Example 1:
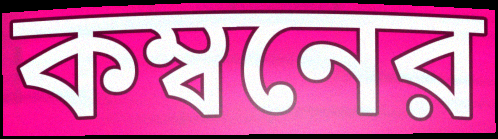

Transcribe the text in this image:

কম্বনের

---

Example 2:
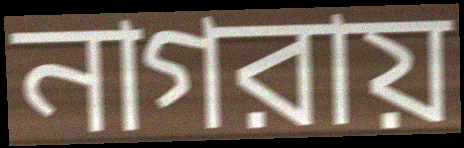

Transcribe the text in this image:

নাগরায়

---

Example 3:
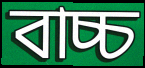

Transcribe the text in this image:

বাচ্চ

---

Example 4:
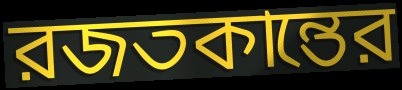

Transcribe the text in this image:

রজতকান্তের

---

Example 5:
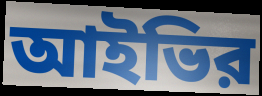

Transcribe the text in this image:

আইভির